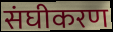
संघीकरण